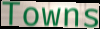
Towns